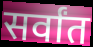
सर्वांत